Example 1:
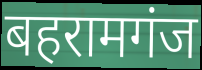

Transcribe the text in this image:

बहरामगंज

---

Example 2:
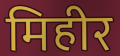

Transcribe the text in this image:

मिहीर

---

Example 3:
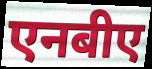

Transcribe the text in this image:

एनबीए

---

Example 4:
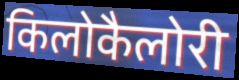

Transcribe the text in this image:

किलोकैलोरी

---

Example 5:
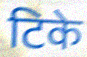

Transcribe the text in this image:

टिके